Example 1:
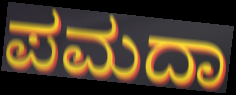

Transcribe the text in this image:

ಪಮದಾ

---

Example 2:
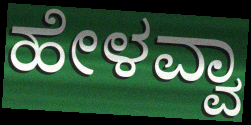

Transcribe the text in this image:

ಹೇಳವ್ವಾ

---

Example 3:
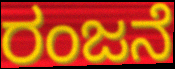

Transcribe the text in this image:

ರಂಜನೆ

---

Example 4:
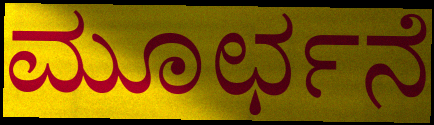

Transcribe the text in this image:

ಮೂರ್ಛನೆ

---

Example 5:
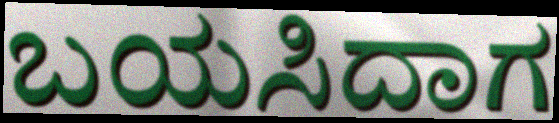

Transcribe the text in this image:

ಬಯಸಿದಾಗ